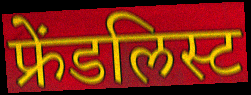
फ्रेंडलिस्ट